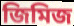
জিমিজ